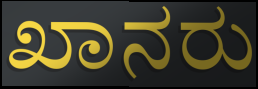
ಖಾನರು